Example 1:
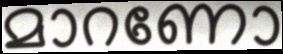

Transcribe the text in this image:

മാറണോ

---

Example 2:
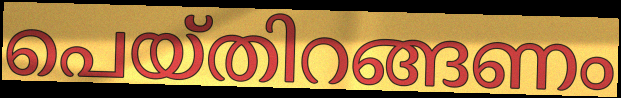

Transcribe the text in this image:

പെയ്തിറങ്ങണം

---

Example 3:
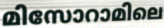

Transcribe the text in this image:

മിസോറാമിലെ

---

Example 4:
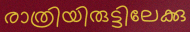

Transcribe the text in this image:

രാത്രിയിരുട്ടിലേക്കു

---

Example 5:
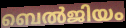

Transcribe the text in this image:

ബെൽജിയം